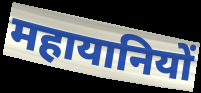
महायानियों